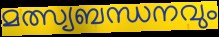
മത്സ്യബന്ധനവും